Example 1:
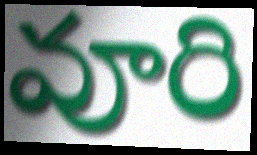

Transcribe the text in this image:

వూరి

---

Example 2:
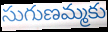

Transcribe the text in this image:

సుగుణమ్మకు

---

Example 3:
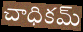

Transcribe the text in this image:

చాధికమ్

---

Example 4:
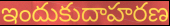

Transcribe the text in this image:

ఇందుకుదాహరణ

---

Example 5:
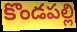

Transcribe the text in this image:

కొండపల్లి